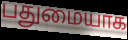
பதுமையாக